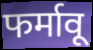
फर्मावू